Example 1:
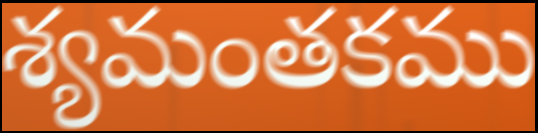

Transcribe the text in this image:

శ్యమంతకము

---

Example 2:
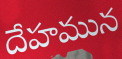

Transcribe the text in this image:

దేహమున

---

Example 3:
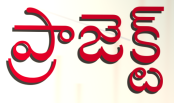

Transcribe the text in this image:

ప్రాజెక్ట్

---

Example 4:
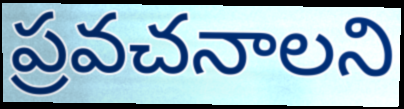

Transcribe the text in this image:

ప్రవచనాలని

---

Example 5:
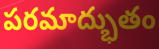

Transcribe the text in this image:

పరమాద్భుతం